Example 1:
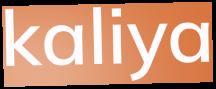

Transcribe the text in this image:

kaliya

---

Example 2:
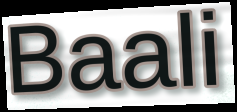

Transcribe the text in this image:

Baali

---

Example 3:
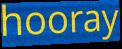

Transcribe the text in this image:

hooray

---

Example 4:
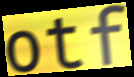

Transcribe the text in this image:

otf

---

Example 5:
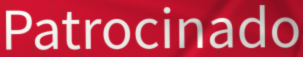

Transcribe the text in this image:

Patrocinado